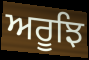
ਅਰੂਝਿ